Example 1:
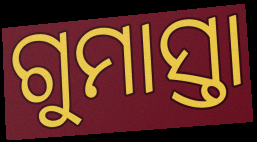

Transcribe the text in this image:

ଗୁମାସ୍ତା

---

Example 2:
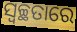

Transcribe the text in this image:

ସ୍ବଚ୍ଛତାରେ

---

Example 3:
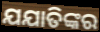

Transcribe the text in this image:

ଯଯାତିଙ୍କର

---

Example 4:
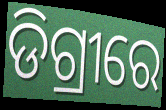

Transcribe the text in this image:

ଡିଗ୍ରୀରେ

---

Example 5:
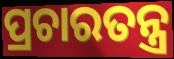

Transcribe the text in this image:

ପ୍ରଚାରତନ୍ତ୍ର